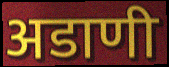
अडाणी